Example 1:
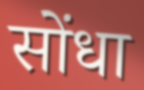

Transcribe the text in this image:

सोंधा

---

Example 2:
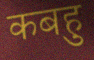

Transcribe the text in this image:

कबहु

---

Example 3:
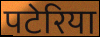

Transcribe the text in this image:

पटेरिया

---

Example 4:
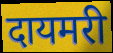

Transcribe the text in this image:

दायमरी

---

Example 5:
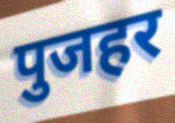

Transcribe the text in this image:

पुजहर